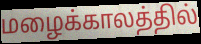
மழைக்காலத்தில்